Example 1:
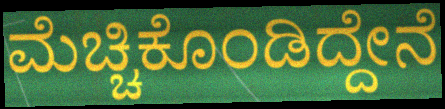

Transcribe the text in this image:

ಮೆಚ್ಚಿಕೊಂಡಿದ್ದೇನೆ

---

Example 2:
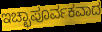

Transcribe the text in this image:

ಇಚ್ಛಾಪೂರ್ವಕವಾದ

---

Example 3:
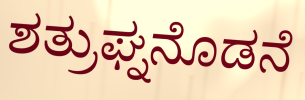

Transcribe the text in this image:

ಶತ್ರುಘ್ನನೊಡನೆ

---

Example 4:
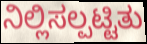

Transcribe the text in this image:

ನಿಲ್ಲಿಸಲ್ಪಟ್ಟಿತು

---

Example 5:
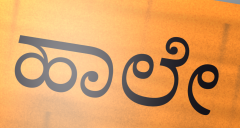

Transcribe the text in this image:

ಹಾಲೇ